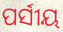
ପର୍ସୀୟ